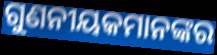
ଗୁଣନୀୟକମାନଙ୍କର